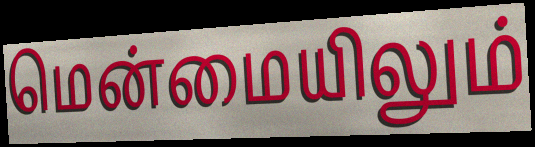
மென்மையிலும்